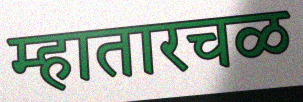
म्हातारचळ